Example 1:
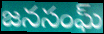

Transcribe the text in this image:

జనసంఘ్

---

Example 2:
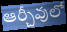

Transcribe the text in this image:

ఆర్చీవులో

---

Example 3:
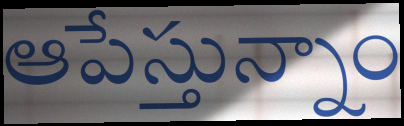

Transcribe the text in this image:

ఆపేస్తున్నాం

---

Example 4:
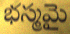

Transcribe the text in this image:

భస్మమై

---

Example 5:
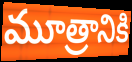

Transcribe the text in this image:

మూత్రానికి